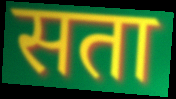
सता